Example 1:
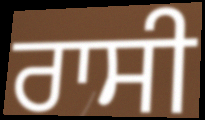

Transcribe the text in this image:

ਰਾਸੀ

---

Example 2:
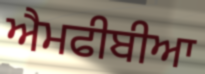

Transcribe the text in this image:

ਐਮਫੀਬੀਆ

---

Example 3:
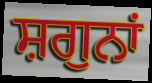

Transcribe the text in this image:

ਸ਼ਗੁਨਾਂ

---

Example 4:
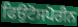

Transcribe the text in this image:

ਫਿਉਟੋਸਪੋਰੀਨ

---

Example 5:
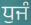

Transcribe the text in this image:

ਧੁਜੰ